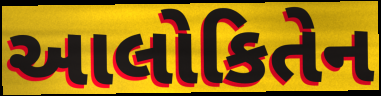
આલોકિતેન